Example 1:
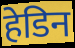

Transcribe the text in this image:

हेडिन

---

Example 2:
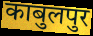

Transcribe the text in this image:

काबुलपुर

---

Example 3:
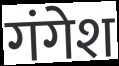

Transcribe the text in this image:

गंगेश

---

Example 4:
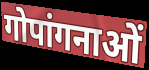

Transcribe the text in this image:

गोपांगनाओं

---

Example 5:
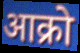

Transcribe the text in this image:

आक्रो